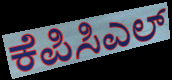
ಕೆಪಿಸಿಎಲ್